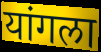
यांगला